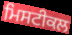
ਮਿਸਟੀਕਲ